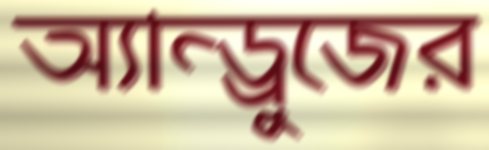
অ্যান্ড্রুজের